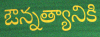
ఔన్నత్యానికి